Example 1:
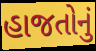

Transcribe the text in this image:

હાજતોનું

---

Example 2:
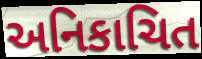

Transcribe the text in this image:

અનિકાચિત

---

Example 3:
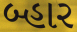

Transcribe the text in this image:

બ્હાર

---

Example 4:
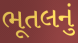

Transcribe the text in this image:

ભૂતલનું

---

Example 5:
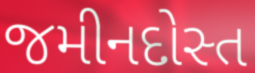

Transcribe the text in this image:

જમીનદોસ્ત